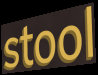
stool